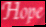
Hope